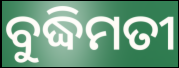
ବୁଦ୍ଧିମତୀ